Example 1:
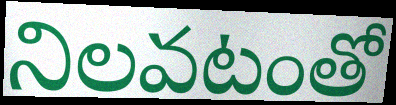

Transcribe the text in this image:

నిలవటంతో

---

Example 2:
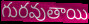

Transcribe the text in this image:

గురవుతాయి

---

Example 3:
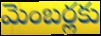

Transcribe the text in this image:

మెంబర్లకు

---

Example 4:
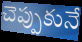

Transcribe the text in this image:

చెప్పుకునే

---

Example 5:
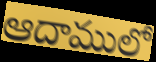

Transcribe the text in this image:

ఆదాములో